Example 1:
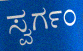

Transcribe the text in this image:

ಸ್ವರ್ಗಂ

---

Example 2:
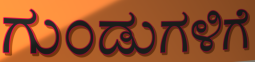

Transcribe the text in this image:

ಗುಂಡುಗಳಿಗೆ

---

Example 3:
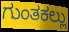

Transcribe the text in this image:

ಗುಂತಕಲ್ಲು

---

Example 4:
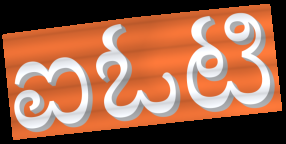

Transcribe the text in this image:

ಐಓಟಿ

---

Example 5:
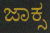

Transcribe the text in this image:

ಜಾಕ್ಸ